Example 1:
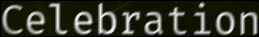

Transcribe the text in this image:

Celebration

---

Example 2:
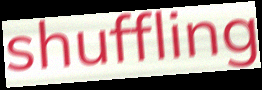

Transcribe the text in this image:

shuffling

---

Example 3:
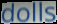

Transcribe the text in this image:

dolls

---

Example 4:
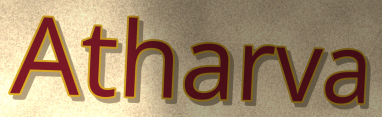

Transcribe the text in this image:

Atharva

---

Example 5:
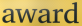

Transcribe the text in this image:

award